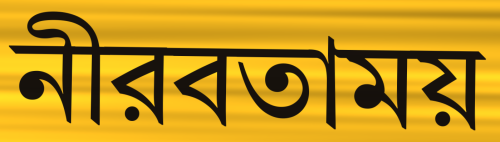
নীরবতাময়